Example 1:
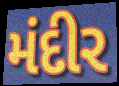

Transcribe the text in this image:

મંદીર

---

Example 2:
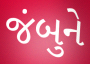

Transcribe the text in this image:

જંબુને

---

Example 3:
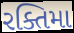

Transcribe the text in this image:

રક્તિમા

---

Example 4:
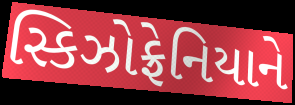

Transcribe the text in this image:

સ્કિઝોફ્રેનિયાને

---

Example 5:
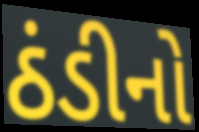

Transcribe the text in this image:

ઠંડીનો